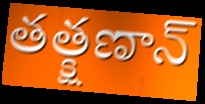
తత్క్షణాన్